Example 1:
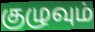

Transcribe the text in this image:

குழுவும்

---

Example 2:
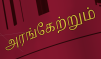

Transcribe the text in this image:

அரங்கேற்றும்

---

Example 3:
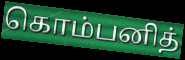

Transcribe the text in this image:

கொம்பனித்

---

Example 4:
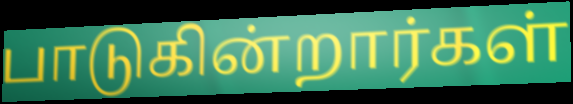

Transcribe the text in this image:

பாடுகின்றார்கள்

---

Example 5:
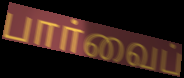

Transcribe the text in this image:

பார்வைப்